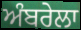
ਅੰਬਰੇਲਾ